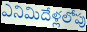
ఎనిమిదేళ్లలోపు